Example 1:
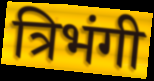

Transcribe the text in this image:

त्रिभंगी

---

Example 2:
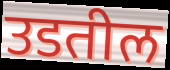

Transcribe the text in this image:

उडतील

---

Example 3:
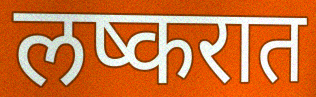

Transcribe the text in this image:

लष्करात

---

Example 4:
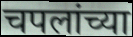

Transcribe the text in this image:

चपलांच्या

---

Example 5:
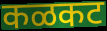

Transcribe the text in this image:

कळकट